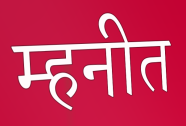
म्हनीत